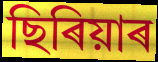
ছিৰিয়াৰ